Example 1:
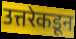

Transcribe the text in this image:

उत्तरेकडून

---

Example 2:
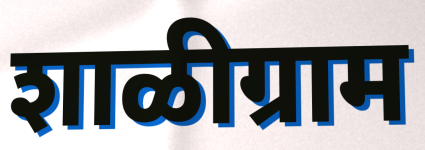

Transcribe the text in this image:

शाळीग्राम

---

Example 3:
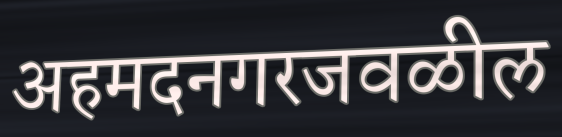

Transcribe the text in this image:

अहमदनगरजवळील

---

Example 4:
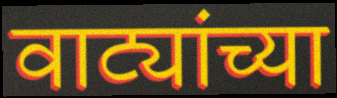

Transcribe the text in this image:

वाट्यांच्या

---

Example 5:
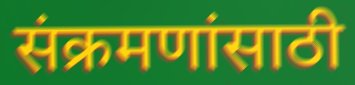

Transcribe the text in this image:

संक्रमणांसाठी